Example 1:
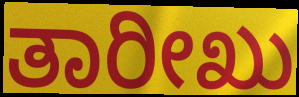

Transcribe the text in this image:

ತಾರೀಖು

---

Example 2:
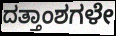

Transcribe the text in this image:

ದತ್ತಾಂಶಗಳೇ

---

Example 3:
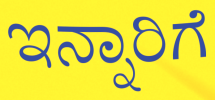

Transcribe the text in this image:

ಇನ್ನಾರಿಗೆ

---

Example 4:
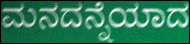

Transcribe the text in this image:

ಮನದನ್ನೆಯಾದ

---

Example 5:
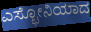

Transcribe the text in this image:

ಎಸ್ಟೋನಿಯಾದ